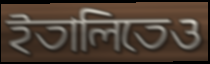
ইতালিতেও